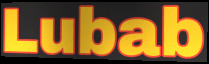
Lubab